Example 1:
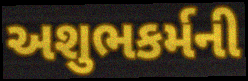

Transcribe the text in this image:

અશુભકર્મની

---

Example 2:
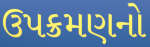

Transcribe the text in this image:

ઉપક્રમણનો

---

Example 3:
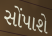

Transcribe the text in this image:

સોંપાશે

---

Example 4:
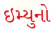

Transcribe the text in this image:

ઇમ્યુનો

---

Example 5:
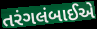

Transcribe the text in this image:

તરંગલંબાઈએ